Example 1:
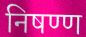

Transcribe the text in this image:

निषण्ण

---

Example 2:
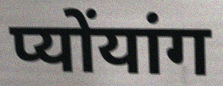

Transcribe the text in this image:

प्योंयांग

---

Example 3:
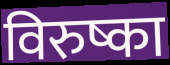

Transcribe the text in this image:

विरुष्का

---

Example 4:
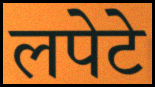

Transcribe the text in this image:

लपेटे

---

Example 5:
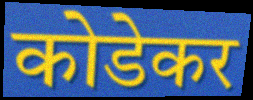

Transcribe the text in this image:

कोडेकर